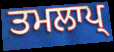
ਤਮਲਾਪ੍